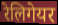
रेलिगेयर